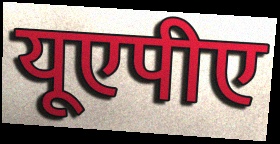
यूएपीए